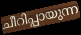
ചീറിപ്പായുന്ന